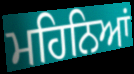
ਮਹਿਨਿਆਂ